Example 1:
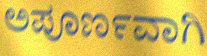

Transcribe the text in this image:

ಅಪೂರ್ಣವಾಗಿ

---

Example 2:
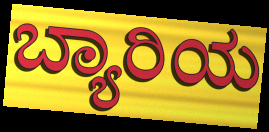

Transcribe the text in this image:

ಬ್ಯಾರಿಯ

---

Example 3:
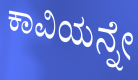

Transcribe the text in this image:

ಕಾವಿಯನ್ನೇ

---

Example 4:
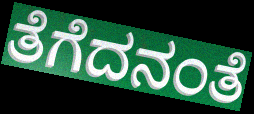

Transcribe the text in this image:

ತೆಗೆದನಂತೆ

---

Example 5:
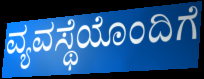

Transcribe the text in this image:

ವ್ಯವಸ್ಥೆಯೊಂದಿಗೆ